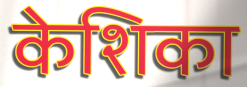
केशिका